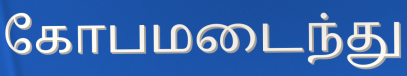
கோபமடைந்து